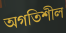
অগতিশীল